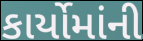
કાર્યોમાંની